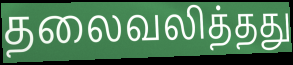
தலைவலித்தது